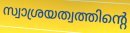
സ്വാശ്രയത്വത്തിന്റെ